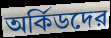
অর্কিডদের